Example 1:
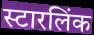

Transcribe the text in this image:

स्‍टारलिंक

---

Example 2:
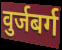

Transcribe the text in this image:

वुर्जबर्ग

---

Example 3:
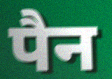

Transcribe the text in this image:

पैन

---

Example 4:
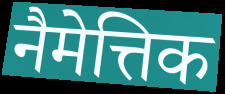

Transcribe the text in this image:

नैमेत्तिक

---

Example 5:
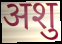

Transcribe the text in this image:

अशु